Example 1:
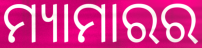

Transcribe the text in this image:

ମ୍ୟାମାରର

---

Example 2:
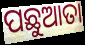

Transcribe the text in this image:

ପଛୁଆତା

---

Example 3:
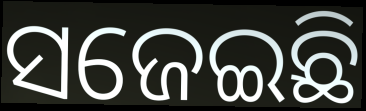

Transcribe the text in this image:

ସଜେଇଛି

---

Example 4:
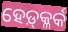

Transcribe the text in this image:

ହେଡ଼୍‍କ୍ଳର୍କ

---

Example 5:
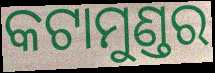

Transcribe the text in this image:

କଟାମୁଣ୍ଡର